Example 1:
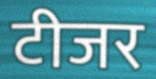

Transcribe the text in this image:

टीजर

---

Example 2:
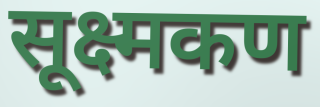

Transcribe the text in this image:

सूक्ष्मकण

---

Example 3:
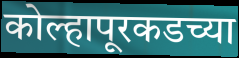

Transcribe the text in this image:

कोल्हापूरकडच्या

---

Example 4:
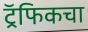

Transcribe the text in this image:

ट्रॅफिकचा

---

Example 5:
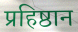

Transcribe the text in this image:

प्रहिष्ठान